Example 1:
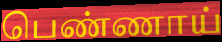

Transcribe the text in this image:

பெண்ணாய்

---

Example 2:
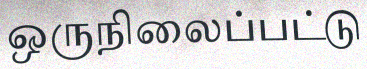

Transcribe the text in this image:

ஒருநிலைப்பட்டு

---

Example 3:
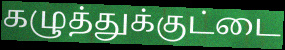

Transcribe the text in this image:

கழுத்துக்குட்டை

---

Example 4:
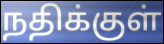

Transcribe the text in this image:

நதிக்குள்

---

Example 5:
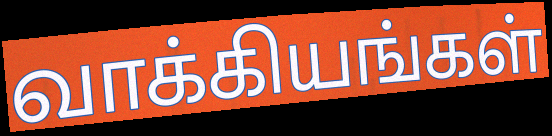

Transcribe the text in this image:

வாக்கியங்கள்